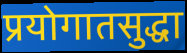
प्रयोगातसुद्धा